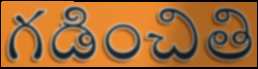
గడించితి